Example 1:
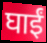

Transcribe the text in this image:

घाईं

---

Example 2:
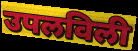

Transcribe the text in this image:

उपलविली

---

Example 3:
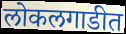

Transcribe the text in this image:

लोकलगाडीत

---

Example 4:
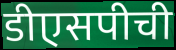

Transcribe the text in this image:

डीएसपीची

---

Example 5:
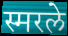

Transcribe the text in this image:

स्मरले